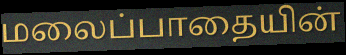
மலைப்பாதையின்